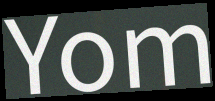
Yom